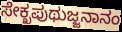
ಸೇಕ್ಖಪುಥುಜ್ಜನಾನಂ